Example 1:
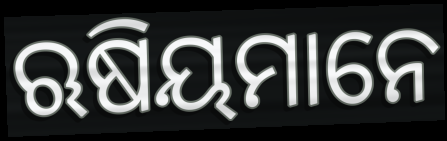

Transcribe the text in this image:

ଋଷିୟମାନେ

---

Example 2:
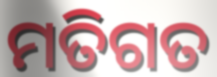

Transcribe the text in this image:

ମତିଗତ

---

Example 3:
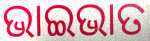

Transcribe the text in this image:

ଭାଇଭାତ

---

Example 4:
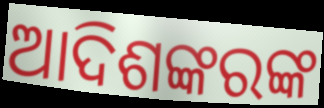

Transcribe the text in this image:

ଆଦିଶଙ୍କରଙ୍କ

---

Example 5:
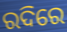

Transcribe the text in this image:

ରଦିରେ